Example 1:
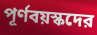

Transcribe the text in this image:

পূর্ণবয়স্কদের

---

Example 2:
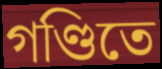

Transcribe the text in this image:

গণ্ডিতে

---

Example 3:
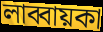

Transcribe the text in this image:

লাব্বায়কা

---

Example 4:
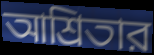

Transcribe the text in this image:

আশ্রিতার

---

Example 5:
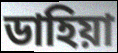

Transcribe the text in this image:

ডাহিয়া